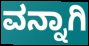
ವನ್ನಾಗಿ